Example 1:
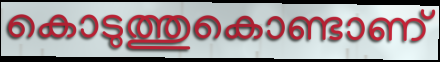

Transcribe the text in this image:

കൊടുത്തുകൊണ്ടാണ്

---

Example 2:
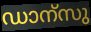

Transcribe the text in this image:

ഡാന്സു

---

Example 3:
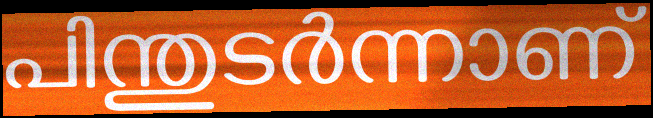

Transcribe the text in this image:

പിന്തുടർന്നാണ്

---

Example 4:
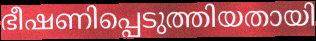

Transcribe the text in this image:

ഭീഷണിപ്പെടുത്തിയതായി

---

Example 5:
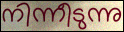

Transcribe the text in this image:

നിന്നീടുന്നു